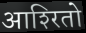
आश्रितो